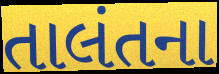
તાલંતના